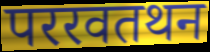
पररवतथन